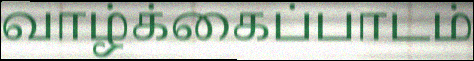
வாழ்க்கைப்பாடம்